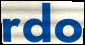
rdo